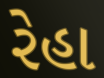
રેહા